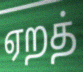
ஏறத்